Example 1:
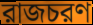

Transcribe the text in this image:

রাজচরণ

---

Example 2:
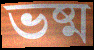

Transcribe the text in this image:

ভষ্ম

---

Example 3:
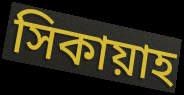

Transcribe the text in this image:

সিকায়াহ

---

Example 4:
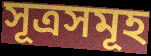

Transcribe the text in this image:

সূত্রসমূহ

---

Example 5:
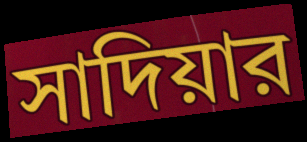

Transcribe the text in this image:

সাদিয়ার